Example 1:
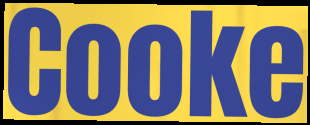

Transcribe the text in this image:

Cooke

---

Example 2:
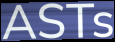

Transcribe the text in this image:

ASTs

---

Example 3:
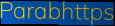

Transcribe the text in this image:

Parabhttps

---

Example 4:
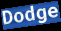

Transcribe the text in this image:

Dodge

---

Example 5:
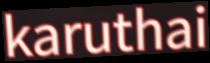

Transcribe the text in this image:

karuthai